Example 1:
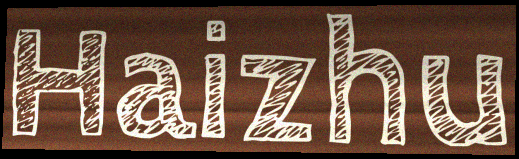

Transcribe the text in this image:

Haizhu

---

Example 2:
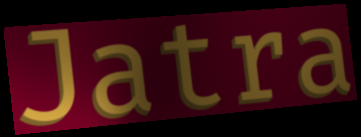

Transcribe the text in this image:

Jatra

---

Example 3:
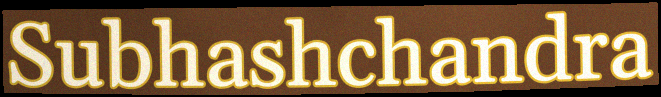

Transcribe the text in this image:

Subhashchandra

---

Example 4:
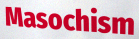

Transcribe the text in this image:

Masochism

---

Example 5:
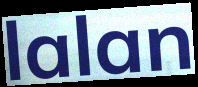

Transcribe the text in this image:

lalan